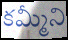
కమ్మీని